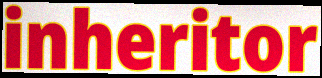
inheritor